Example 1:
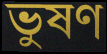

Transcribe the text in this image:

ভুষণ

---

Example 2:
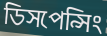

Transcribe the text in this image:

ডিসপেন্সিং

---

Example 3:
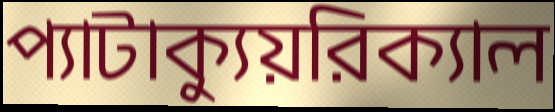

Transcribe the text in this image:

প্যাটাক্যুয়রিক্যাল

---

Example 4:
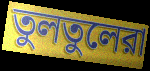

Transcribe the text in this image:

তুলতুলেরা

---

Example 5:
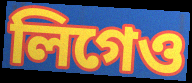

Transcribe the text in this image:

লিগেও